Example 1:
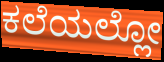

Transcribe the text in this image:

ಕಲೆಯಲ್ಲೋ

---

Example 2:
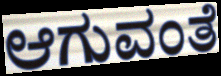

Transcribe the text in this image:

ಆಗುವಂತೆ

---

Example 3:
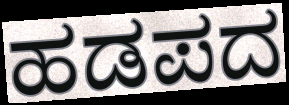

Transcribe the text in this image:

ಹಡಪದ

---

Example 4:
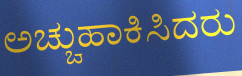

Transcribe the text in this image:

ಅಚ್ಚುಹಾಕಿಸಿದರು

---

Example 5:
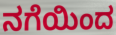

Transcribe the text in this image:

ನಗೆಯಿಂದ